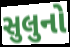
સુલુનો